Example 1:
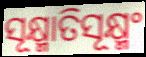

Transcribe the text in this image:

ସୂକ୍ଷ୍ମାତିସୂକ୍ଷ୍ମଂ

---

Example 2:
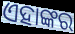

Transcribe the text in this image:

ଏହାଙ୍କର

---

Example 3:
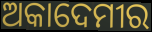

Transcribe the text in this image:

ଅକାଦେମୀର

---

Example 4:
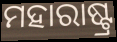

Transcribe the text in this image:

ମହାରାଷ୍ଟ୍ର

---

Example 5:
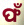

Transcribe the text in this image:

ଫଁ